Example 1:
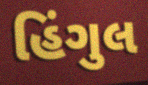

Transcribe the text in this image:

હિંગુલ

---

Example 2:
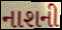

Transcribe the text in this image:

નાશની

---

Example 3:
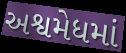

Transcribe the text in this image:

અશ્વમેધમાં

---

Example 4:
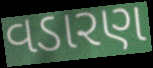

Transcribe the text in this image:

વડારણ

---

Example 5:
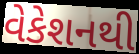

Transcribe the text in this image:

વેકેશનથી